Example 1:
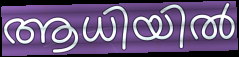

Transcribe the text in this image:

ആധിയിൽ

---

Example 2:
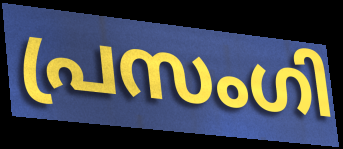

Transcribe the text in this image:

പ്രസംഗി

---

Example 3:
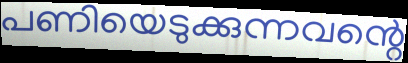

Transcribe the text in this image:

പണിയെടുക്കുന്നവന്റെ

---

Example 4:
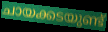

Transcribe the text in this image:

ചായക്കടയുണ്ട്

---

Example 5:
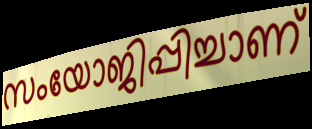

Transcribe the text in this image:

സംയോജിപ്പിച്ചാണ്